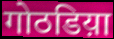
गोठडिय़ा